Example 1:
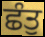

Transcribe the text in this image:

ਛੰਤੁ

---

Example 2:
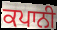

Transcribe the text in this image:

ਕਪਾਨੀ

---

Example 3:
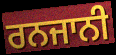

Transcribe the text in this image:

ਰਨਜਾਨੀ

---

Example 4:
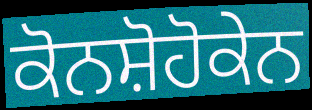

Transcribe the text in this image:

ਕੋਨਸ਼ੋਹੋਕੇਨ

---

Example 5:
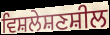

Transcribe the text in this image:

ਵਿਸ਼ਲੇਸ਼ਣਸ਼ੀਲ